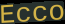
Ecco